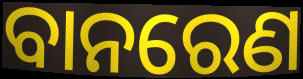
ବାନରେଣ